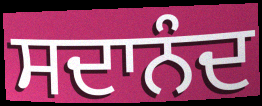
ਸਦਾਨੰਦ